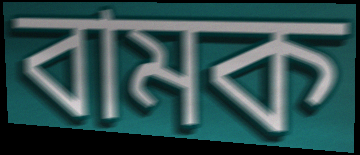
বামক